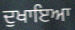
ਦੁਖਾਇਆ